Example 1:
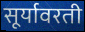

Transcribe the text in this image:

सूर्यावरती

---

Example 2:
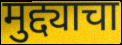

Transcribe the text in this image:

मुद्द्याचा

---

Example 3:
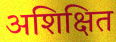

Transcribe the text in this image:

अशिक्षित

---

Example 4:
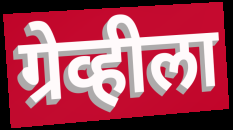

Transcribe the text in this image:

ग्रेव्हीला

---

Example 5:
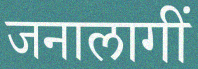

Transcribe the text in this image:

जनालागीं